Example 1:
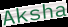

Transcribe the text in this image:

Aksha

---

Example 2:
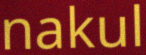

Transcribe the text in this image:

nakul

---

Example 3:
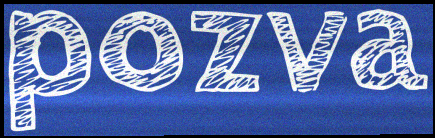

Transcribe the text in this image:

pozva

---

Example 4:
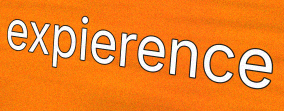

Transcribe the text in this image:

expierence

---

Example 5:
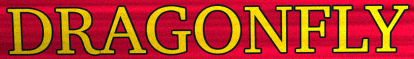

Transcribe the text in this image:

DRAGONFLY